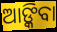
ଆଙ୍କିବା